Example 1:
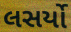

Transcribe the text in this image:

લસર્યો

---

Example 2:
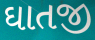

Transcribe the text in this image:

ઘાતજી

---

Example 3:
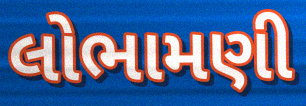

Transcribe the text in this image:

લોભામણી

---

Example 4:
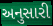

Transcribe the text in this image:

અનુસારી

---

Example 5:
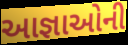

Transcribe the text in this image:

આજ્ઞાઓની